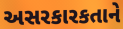
અસરકારકતાને